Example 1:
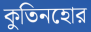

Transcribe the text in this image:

কুতিনহোর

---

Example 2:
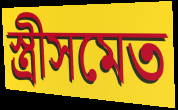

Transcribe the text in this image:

স্ত্রীসমেত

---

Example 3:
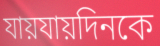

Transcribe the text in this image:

যায়যায়দিনকে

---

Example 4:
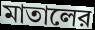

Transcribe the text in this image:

মাতালের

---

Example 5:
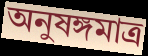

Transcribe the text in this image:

অনুষঙ্গমাত্র